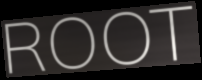
ROOT